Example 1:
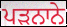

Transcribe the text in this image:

ਪੜਨਾਨੇ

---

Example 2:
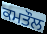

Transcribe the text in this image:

ਕਮਤੌਲ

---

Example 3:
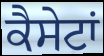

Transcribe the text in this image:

ਕੈਸੇਟਾਂ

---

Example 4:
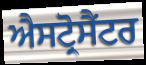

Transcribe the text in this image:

ਐਸਟ੍ਰੋਸੈਂਟਰ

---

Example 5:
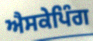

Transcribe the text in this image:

ਐਸਕੇਪਿੰਗ